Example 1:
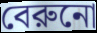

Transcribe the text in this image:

বেরুনো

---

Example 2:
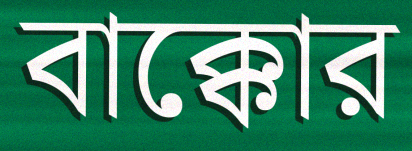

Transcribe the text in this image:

বাক্কোর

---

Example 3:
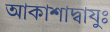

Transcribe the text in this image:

আকাশাদ্বাযুঃ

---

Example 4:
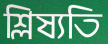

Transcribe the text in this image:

শ্লিষ্যতি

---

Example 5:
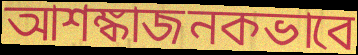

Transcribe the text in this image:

আশঙ্কাজনকভাবে